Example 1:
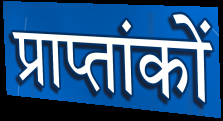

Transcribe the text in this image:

प्राप्तांकों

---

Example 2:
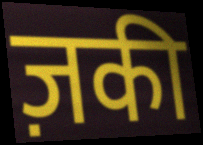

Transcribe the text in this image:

ज़की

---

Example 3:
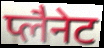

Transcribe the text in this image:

प्लैनेट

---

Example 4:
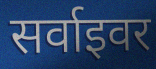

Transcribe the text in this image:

सर्वाइवर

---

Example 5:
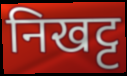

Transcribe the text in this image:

निखट्ट